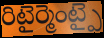
రిటైర్మెంట్పై